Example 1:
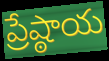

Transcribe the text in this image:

ప్రేష్ఠాయ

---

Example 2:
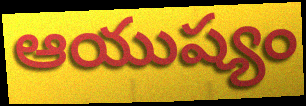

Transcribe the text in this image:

ఆయుష్యం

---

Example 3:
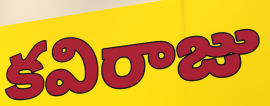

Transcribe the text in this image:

కవిరాజు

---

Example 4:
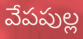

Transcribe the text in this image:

వేపపుల్ల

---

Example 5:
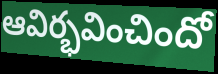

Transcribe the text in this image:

ఆవిర్భవించిందో